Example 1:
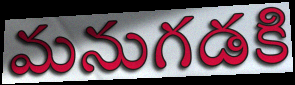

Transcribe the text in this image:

మనుగడకి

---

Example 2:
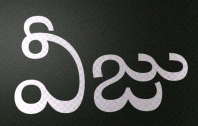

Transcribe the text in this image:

వీజు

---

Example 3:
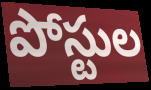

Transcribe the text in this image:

పోస్టుల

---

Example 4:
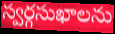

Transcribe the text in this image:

స్వర్గసుఖాలను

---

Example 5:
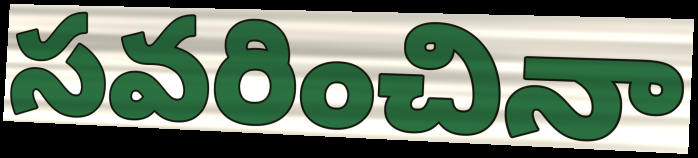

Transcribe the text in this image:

సవరించినా